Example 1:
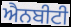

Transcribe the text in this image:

ਐਨਬੀਟੀ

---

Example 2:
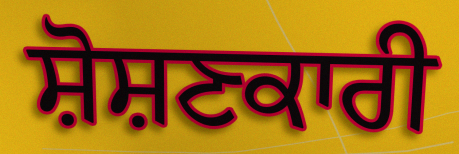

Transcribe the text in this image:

ਸ਼ੋਸ਼ਣਕਾਰੀ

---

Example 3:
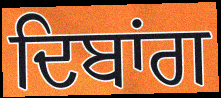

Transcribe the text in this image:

ਦਿਬਾਂਗ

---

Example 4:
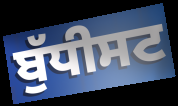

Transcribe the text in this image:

ਬੁੱਧੀਸਟ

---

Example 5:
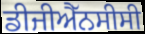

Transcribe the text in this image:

ਡੀਜੀਐੱਨਸੀਸੀ